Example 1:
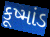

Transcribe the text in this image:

કૂષ્માંડ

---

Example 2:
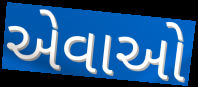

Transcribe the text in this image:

એવાઓ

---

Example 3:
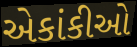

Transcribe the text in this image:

એકાંકીઓ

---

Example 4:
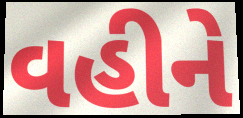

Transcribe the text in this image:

વહીને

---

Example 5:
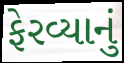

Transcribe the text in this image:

ફેરવ્યાનું